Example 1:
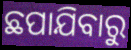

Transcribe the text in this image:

ଛପାଯିବାରୁ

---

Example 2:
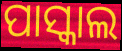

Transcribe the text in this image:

ପାସ୍କାଲ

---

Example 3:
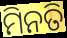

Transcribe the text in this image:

ମିନତି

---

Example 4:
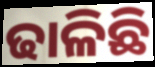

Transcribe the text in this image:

ଢାଳିଛି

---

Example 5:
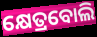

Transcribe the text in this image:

କ୍ଷେତ୍ରବୋଲି